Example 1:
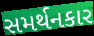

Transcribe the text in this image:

સમર્થનકાર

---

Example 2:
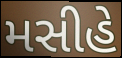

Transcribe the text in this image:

મસીહે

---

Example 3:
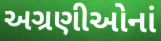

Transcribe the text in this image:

અગ્રણીઓનાં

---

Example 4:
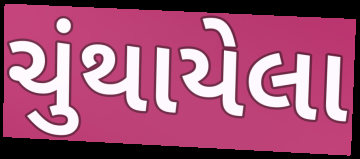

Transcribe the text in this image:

ચુંથાયેલા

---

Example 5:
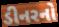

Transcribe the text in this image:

ડીનરનો